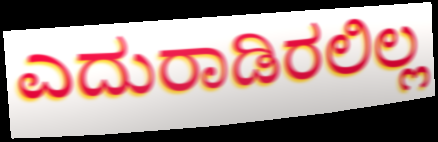
ಎದುರಾಡಿರಲಿಲ್ಲ